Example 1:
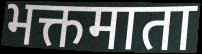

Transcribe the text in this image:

भक्तमाता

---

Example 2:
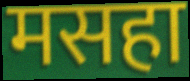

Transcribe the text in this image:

मसहा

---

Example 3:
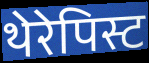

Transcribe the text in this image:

थेरेपिस्‍ट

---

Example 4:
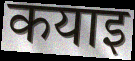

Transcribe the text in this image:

कयाइ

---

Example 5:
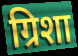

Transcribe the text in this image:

ग्रिशा